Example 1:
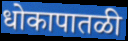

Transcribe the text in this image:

धोकापातळी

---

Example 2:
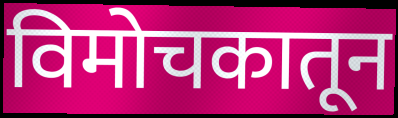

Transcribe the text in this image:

विमोचकातून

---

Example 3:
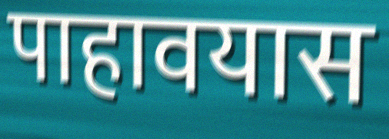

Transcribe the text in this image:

पाहावयास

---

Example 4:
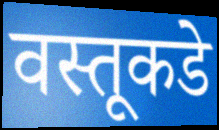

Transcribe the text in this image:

वस्तूकडे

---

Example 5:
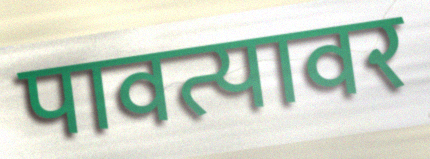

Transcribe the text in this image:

पावत्यावर